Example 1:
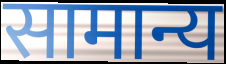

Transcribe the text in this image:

सामान्य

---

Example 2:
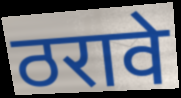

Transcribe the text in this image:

ठरावे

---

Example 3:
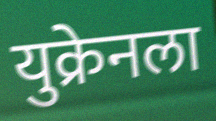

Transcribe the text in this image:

युक्रेनला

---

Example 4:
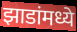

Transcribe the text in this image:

झाडांमध्ये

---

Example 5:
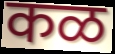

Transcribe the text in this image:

कळ